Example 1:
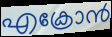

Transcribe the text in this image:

എക്രോൻ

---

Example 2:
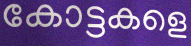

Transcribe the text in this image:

കോട്ടകളെ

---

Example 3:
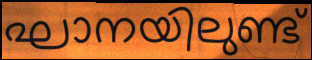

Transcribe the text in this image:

ഘാനയിലുണ്ട്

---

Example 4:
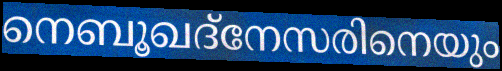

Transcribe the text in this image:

നെബൂഖദ്നേസരിനെയും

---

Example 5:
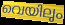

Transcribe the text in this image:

വെയിലും